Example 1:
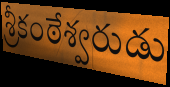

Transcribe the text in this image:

శ్రీకంఠేశ్వరుడు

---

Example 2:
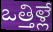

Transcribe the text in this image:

ఒత్తిళ్లే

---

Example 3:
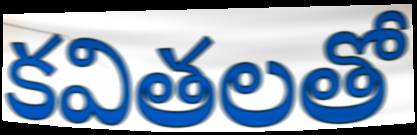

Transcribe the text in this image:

కవితలతో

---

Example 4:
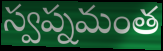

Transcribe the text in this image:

స్వప్నమంత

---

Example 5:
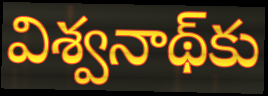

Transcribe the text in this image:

విశ్వనాథ్‌కు